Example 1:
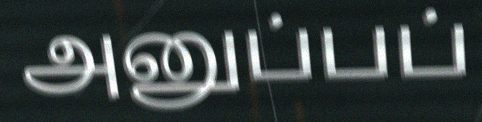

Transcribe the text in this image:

அனுப்பப்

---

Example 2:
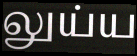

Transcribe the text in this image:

லுய்ய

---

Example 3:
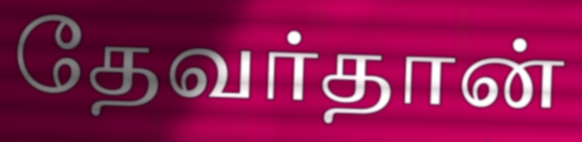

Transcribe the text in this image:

தேவர்தான்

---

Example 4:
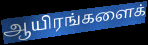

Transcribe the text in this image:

ஆயிரங்களைக்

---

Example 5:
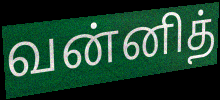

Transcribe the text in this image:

வன்னித்